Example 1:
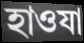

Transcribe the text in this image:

হাওযা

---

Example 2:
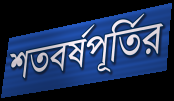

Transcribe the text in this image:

শতবর্ষপূর্তির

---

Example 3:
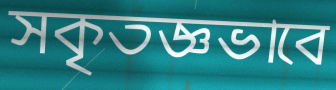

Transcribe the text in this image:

সকৃতজ্ঞভাবে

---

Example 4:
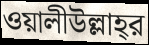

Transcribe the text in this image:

ওয়ালীউল্লাহ্‌র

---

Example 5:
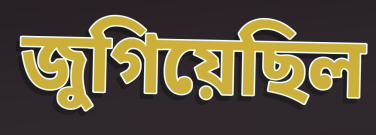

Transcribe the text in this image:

জুগিয়েছিল